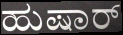
ಹುಷಾರ್